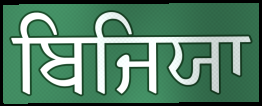
ਬਿਜਿਯਾ